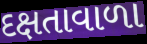
દક્ષતાવાળા